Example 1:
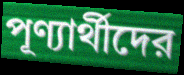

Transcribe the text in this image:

পূণ্যার্থীদের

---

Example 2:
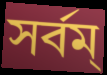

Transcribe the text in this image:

সর্বম্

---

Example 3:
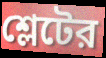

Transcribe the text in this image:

শ্লেটের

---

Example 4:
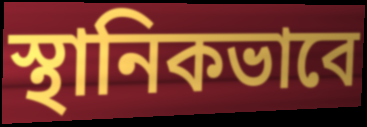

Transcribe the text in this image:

স্থানিকভাবে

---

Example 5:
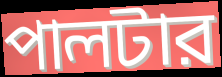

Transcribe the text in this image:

পালটার